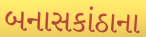
બનાસકાંઠાના